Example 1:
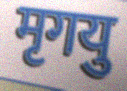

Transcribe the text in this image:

मृगयु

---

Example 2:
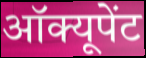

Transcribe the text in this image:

ऑक्यूपेंट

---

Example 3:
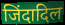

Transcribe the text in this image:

जिंदादिल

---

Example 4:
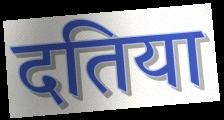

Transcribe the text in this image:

दतिया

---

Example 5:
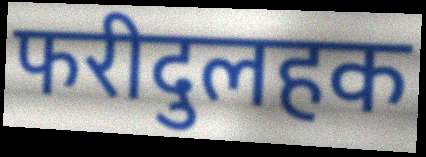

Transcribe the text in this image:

फरीदुलहक